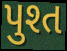
પુશ્ત